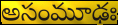
అసంమూఢః